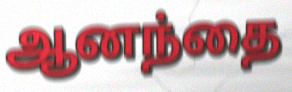
ஆனந்தை